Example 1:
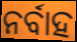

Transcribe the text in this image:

ନର୍ବାହ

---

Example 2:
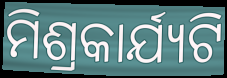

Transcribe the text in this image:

ମିଶ୍ରକାର୍ଯ୍ୟଟି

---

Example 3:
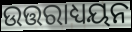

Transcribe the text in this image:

ଉତ୍ତରାଧ୍ୟୟନ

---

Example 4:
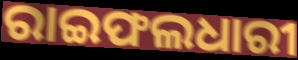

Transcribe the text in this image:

ରାଇଫଲଧାରୀ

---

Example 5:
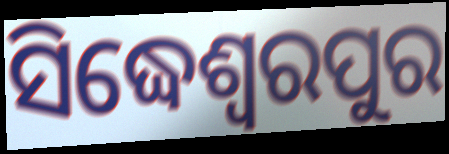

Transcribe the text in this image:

ସିଦ୍ଧେଶ୍ଵରପୁର